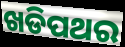
ଖଡିପଥର